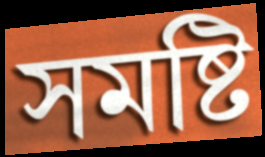
সমষ্টি